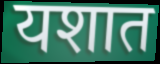
यशात